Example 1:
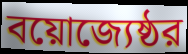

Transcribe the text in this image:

বয়োজ্যেষ্ঠর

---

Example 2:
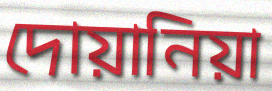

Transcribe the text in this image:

দোয়ানিয়া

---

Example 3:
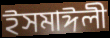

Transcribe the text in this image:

ইসমাঈলী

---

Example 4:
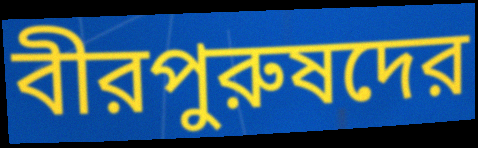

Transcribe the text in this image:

বীরপুরুষদের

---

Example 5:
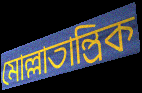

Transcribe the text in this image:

মোল্লাতান্ত্রিক